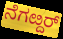
ನೆಗೞ್ದರ್